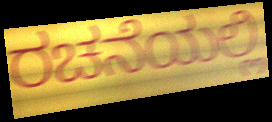
ರಚನೆಯಲ್ಲಿ